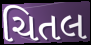
ચિતલ